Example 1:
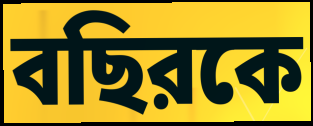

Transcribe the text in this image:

বছিরকে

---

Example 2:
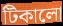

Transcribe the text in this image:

টিকালো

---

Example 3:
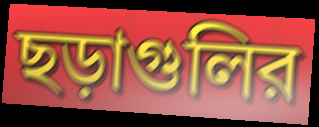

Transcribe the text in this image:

ছড়াগুলির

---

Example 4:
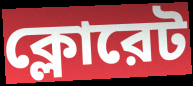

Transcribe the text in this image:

ক্লোরেট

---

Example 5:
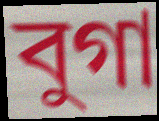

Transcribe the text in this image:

বুগা